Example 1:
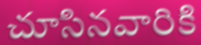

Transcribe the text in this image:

చూసినవారికి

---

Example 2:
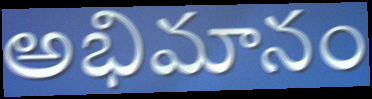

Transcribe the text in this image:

అభిమానం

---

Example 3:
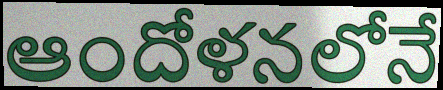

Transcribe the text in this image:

ఆందోళనలోనే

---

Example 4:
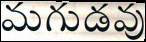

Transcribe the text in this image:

మగుడవు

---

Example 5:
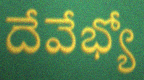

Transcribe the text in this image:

దేవేభ్యో